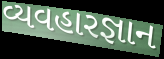
વ્યવહારજ્ઞાન